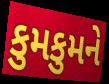
કુમકુમને